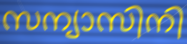
സന്യാസിനി